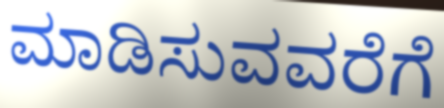
ಮಾಡಿಸುವವರೆಗೆ